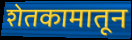
शेतकामातून